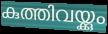
കുത്തിവയ്ക്കും